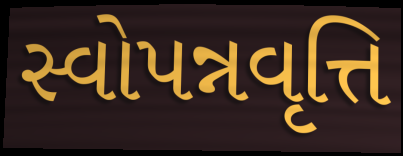
સ્વોપન્નવૃત્તિ